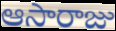
ఆసారాజు